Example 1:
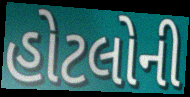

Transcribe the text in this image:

હોટલોની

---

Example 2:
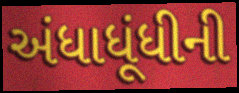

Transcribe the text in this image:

અંધાધૂંધીની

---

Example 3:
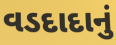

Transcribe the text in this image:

વડદાદાનું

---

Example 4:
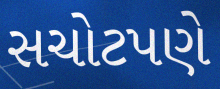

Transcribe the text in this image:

સચોટપણે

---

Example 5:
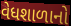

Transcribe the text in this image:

વેધશાળાનો